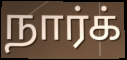
நார்க்